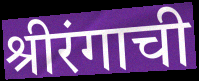
श्रीरंगाची